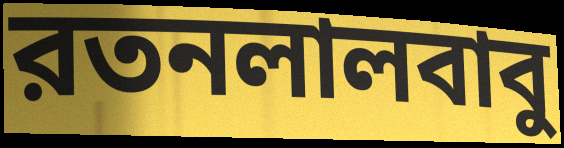
রতনলালবাবু